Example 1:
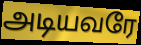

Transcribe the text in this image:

அடியவரே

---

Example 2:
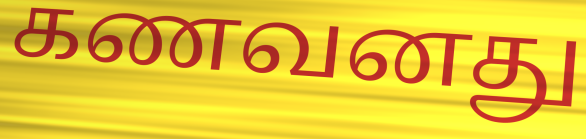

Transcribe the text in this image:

கணவனது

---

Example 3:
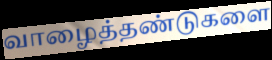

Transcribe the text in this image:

வாழைத்தண்டுகளை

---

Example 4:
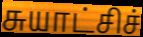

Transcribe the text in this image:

சுயாட்சிச்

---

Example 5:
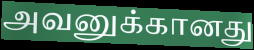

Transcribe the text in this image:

அவனுக்கானது